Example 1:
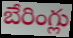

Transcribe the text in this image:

బేరింగ్లు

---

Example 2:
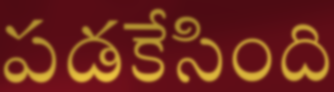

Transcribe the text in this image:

పడకేసింది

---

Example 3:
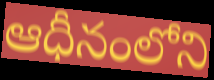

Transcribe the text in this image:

ఆధీనంలోని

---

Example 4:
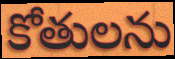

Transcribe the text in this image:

కోతులను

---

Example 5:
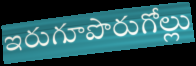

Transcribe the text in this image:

ఇరుగూపొరుగోల్లు